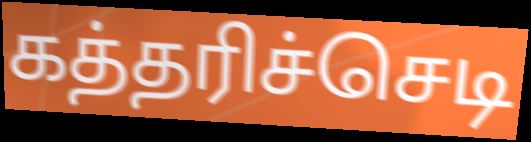
கத்தரிச்செடி